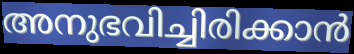
അനുഭവിച്ചിരിക്കാൻ